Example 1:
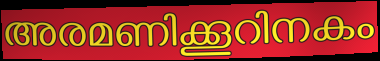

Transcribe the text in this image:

അരമണിക്കൂറിനകം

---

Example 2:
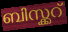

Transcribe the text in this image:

ബിസ്ക്കറ്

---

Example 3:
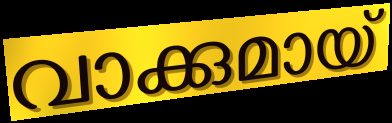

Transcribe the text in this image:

വാക്കുമായ്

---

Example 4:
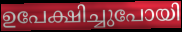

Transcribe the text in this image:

ഉപേക്ഷിച്ചുപോയി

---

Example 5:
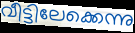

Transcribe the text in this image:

വീട്ടിലേക്കെന്നു